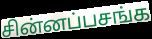
சின்னப்பசங்க